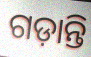
ଗଡ଼ାନ୍ତି